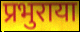
प्रभुराया